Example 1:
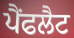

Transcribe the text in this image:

ਪੈਂਫਲੈਟ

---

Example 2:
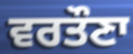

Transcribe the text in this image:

ਵਰਤੌਣਾ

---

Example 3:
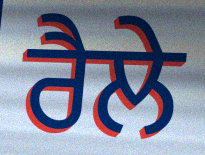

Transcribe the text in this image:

ਰੈਲੇ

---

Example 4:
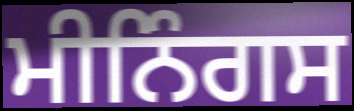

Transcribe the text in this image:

ਮੀਨਿੰਗਸ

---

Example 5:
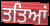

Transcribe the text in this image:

ਤਤਿਆਂ